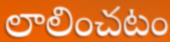
లాలించటం